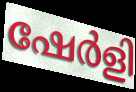
ഷേർളി